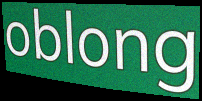
oblong